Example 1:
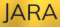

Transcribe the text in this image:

JARA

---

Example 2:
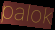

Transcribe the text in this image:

palok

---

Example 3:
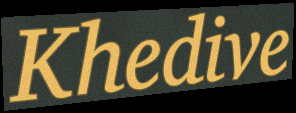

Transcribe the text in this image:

Khedive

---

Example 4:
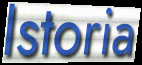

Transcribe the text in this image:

Istoria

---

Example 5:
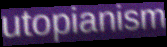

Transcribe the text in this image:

utopianism